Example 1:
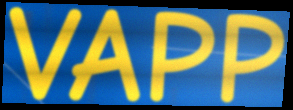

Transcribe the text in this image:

VAPP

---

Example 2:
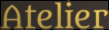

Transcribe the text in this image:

Atelier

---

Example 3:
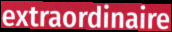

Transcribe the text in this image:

extraordinaire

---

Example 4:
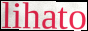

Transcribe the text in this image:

lihato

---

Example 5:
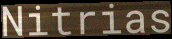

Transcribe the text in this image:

Nitrias